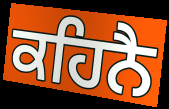
ਕਹਿਨੈ